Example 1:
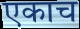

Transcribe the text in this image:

एकाच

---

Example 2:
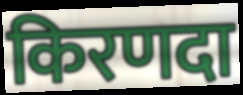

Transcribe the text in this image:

किरणदा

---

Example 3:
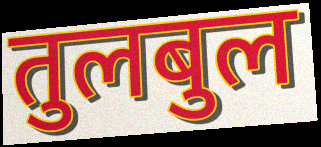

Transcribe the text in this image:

तुलबुल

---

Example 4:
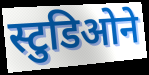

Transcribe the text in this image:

स्टुडिओने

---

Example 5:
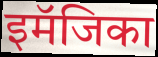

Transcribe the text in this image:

इमॅजिका